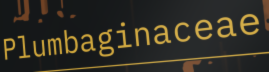
Plumbaginaceae